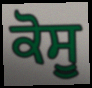
ਕੋਸੂ